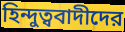
হিন্দুত্ববাদীদের